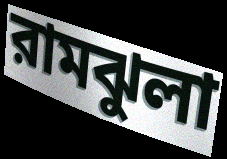
রামঝুলা